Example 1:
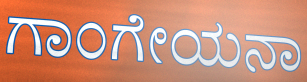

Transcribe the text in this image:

ಗಾಂಗೇಯನಾ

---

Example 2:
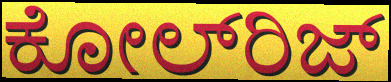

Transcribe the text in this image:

ಕೋಲ್‍ರಿಜ್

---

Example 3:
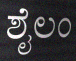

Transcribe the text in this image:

ಶೈಲಂ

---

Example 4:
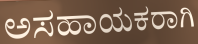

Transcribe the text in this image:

ಅಸಹಾಯಕರಾಗಿ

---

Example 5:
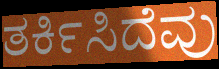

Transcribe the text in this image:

ತರ್ಕಿಸಿದೆವು